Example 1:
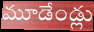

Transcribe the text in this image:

మూడేండ్లు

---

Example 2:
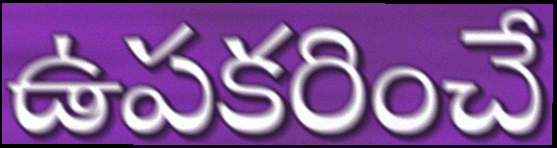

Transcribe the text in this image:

ఉపకరించే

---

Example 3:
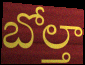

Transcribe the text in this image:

బోల్తా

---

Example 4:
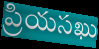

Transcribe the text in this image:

ప్రియసఖు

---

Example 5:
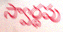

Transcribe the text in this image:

స్వార్థపు